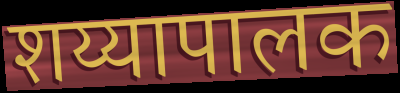
शय्यापालक